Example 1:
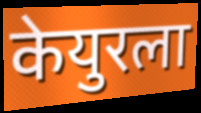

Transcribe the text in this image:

केयुरला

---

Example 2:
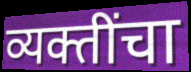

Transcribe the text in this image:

व्यक्‍तींचा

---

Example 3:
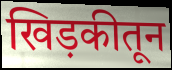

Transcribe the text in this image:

खिड़कीतून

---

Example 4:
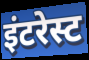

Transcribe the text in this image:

इंटरेस्ट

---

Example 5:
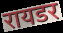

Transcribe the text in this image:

रायडर